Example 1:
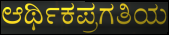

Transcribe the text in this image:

ಆರ್ಥಿಕಪ್ರಗತಿಯ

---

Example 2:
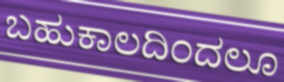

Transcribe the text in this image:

ಬಹುಕಾಲದಿಂದಲೂ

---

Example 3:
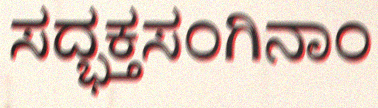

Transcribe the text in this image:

ಸದ್ಭಕ್ತಸಂಗಿನಾಂ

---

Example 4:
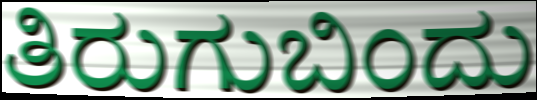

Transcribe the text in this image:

ತಿರುಗುಬಿಂದು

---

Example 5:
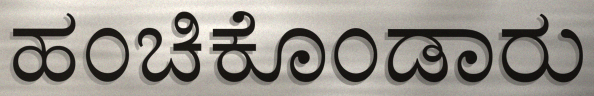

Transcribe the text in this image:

ಹಂಚಿಕೊಂಡಾರು